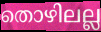
തൊഴിലല്ല